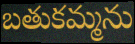
బతుకమ్మను